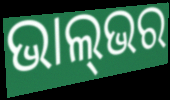
ଭାଲ୍‌ଭର